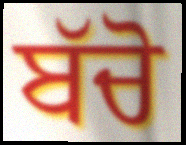
ਬੱਚੋ